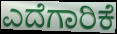
ಎದೆಗಾರಿಕೆ